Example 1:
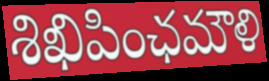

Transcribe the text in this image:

శిఖిపింఛమౌళి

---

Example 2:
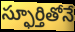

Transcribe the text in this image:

స్ఫూర్తితోనే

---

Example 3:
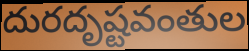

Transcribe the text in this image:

దురదృష్టవంతుల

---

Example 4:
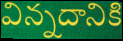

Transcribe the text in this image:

విన్నదానికి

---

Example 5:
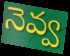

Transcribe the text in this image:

నెవ్వ